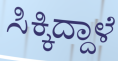
ಸಿಕ್ಕಿದ್ದಾಳೆ